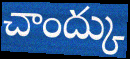
చాంద్కు